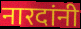
नारदांनी